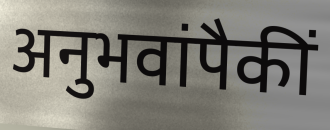
अनुभवांपैकीं